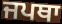
ਜਪਥਾ